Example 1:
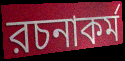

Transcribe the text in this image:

রচনাকর্ম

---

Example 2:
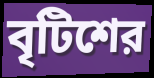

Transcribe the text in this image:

বৃটিশের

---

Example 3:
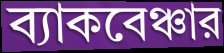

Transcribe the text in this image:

ব্যাকবেঞ্চার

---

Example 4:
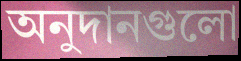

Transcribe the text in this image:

অনুদানগুলো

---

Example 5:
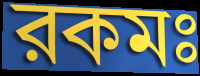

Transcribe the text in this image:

রকমঃ